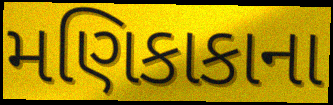
મણિકાકાના